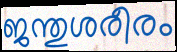
ജന്തുശരീരം